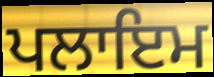
ਪਲਾਇਮ